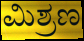
ಮಿಶ್ರಣ